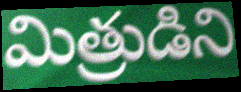
మిత్రుడిని